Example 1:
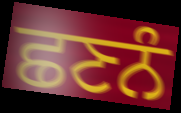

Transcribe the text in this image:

ਛਣਨੰ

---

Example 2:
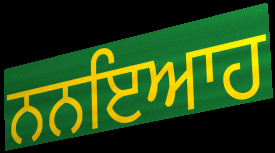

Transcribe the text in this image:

ਨਨਇਆਹ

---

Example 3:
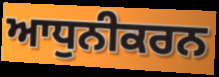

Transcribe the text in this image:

ਆਧੁਨੀਕਰਨ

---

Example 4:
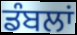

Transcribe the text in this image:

ਡੰਬਲਾਂ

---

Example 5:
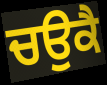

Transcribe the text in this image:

ਚਉਕੈ